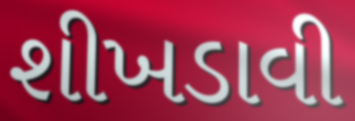
શીખડાવી